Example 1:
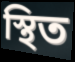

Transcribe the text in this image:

স্থিত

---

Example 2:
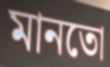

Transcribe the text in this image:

মানতো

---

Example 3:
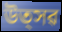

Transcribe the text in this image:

উত্সৱ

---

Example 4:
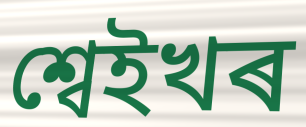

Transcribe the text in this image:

শ্বেইখৰ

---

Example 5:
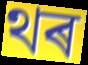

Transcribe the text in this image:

থৰ